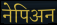
नेपिअन